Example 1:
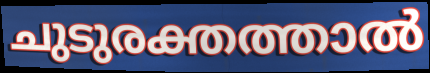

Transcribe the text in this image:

ചുടുരക്തത്താൽ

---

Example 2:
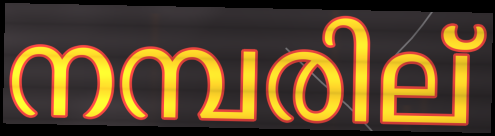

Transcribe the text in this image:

നമ്പരില്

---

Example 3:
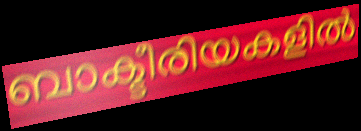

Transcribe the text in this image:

ബാക്ടീരിയകളിൽ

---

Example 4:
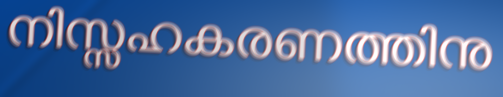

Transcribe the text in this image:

നിസ്സഹകരണത്തിനു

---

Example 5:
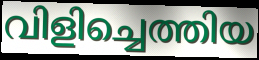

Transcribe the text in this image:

വിളിച്ചെത്തിയ